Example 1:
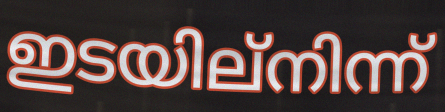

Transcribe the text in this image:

ഇടയില്നിന്ന്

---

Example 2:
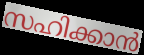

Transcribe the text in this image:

സഹിക്കാൻ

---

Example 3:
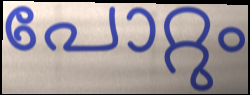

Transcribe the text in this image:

പോറ്റും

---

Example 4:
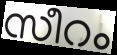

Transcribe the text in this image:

സീറം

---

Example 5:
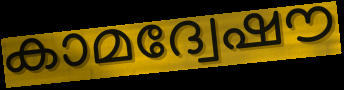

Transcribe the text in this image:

കാമദ്വേഷൗ